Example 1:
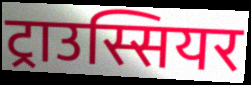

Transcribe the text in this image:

ट्राउस्सियर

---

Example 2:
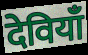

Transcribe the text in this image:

देवियाँ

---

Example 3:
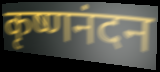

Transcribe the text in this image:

कृष्णनंदन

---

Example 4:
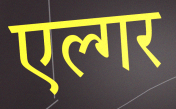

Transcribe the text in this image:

एल्गर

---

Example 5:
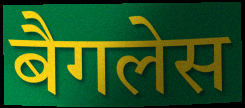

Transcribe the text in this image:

बैगलेस